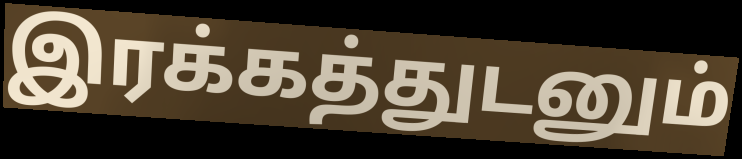
இரக்கத்துடனும்